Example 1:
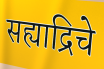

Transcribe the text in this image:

सह्याद्रिचे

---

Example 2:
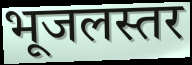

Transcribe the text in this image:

भूजलस्तर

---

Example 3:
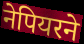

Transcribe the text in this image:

नेपियरने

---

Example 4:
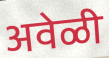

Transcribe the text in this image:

अवेळी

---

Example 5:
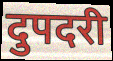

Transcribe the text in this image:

दुपदरी